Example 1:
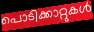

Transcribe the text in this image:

പൊടിക്കാറ്റുകൾ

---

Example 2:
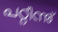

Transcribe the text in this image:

പറ്റീന്നു്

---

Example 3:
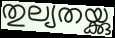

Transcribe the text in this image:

തുല്യതയ്ക്കു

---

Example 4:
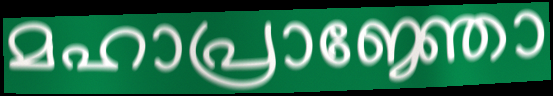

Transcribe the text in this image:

മഹാപ്രാജ്ഞോ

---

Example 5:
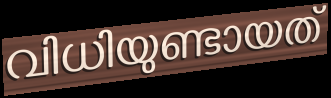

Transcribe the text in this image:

വിധിയുണ്ടായത്